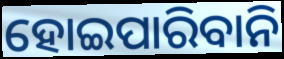
ହୋଇପାରିବାନି